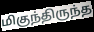
மிகுந்திருந்த